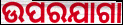
ଉପରଯାଗା